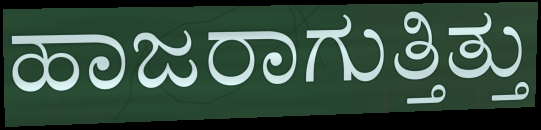
ಹಾಜರಾಗುತ್ತಿತ್ತು